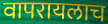
वापरायलाच